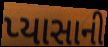
પ્યાસાની